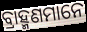
ବ୍ରାହ୍ମଣମାନେ